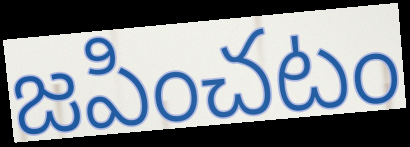
జపించటం